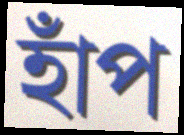
হাঁপ